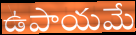
ఉపాయమే